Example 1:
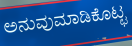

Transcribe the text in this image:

ಅನುವುಮಾಡಿಕೊಟ್ಟ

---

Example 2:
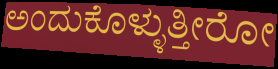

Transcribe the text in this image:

ಅಂದುಕೊಳ್ಳುತ್ತೀರೋ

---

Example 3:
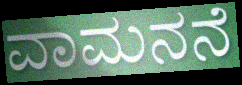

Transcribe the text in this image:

ವಾಮನನೆ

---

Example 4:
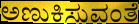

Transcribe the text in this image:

ಅಣುಕಿಸುವಂತೆ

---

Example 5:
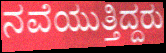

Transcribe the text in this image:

ನವೆಯುತ್ತಿದ್ದರು